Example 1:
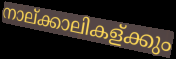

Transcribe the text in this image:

നാല്ക്കാലികള്ക്കും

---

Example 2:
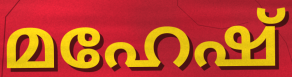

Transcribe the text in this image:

മഹേഷ്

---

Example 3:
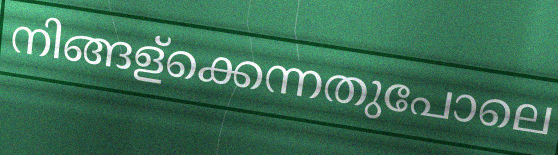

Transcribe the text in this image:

നിങ്ങള്ക്കെന്നതുപോലെ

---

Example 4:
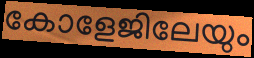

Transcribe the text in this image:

കോളേജിലേയും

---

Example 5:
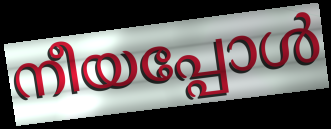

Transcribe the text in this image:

നീയപ്പോൾ